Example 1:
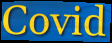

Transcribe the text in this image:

Covid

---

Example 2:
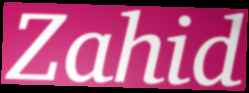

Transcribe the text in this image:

Zahid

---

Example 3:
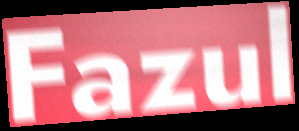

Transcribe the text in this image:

Fazul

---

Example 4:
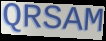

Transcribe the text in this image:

QRSAM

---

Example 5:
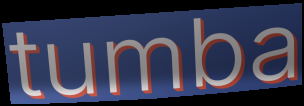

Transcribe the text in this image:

tumba